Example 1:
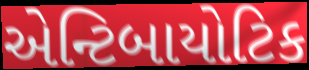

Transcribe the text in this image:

એન્ટિબાયોટિક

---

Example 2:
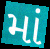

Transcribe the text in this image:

માં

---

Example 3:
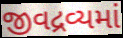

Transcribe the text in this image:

જીવદ્રવ્યમાં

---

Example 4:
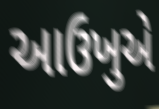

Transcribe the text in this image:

આઉખુએ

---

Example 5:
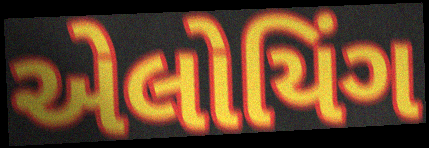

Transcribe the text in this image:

એલોયિંગ